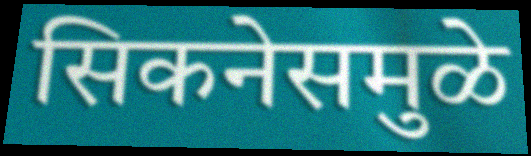
सिकनेसमुळे